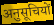
अनुसूचियों